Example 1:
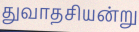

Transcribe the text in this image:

துவாதசியன்று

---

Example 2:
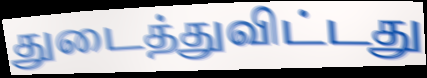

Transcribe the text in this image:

துடைத்துவிட்டது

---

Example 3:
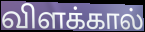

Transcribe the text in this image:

விளக்கால்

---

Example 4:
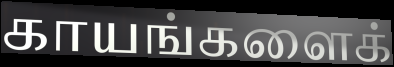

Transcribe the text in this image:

காயங்களைக்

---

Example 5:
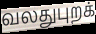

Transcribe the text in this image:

வலதுபுறக்